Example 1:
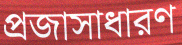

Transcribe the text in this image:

প্রজাসাধারণ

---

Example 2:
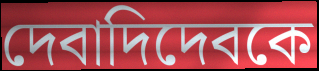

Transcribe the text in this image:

দেবাদিদেবকে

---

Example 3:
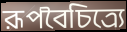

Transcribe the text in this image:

রূপবৈচিত্র্যে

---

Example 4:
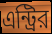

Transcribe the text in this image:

এন্ট্রির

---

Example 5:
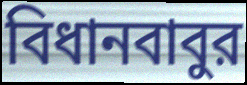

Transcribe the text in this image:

বিধানবাবুর